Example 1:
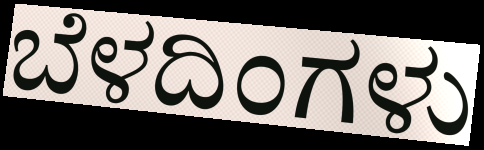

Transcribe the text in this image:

ಬೆಳದಿಂಗಳು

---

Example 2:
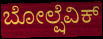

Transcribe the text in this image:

ಬೋಲ್ಷೆವಿಕ್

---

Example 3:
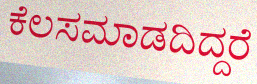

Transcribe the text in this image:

ಕೆಲಸಮಾಡದಿದ್ದರೆ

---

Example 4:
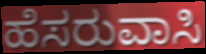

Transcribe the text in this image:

ಹೆಸರುವಾಸಿ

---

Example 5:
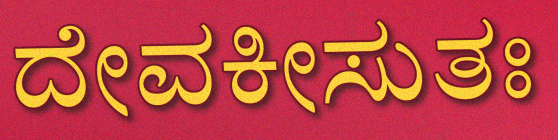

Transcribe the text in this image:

ದೇವಕೀಸುತಃ